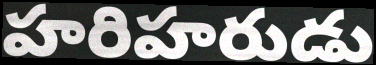
హరిహరుడు